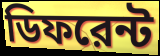
ডিফরেন্ট